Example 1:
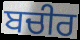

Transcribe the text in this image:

ਬਚੀਰ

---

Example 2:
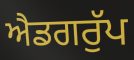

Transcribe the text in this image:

ਐਡਗਰੁੱਪ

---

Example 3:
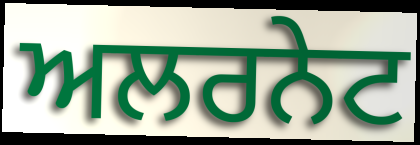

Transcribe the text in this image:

ਅਲਰਨੇਟ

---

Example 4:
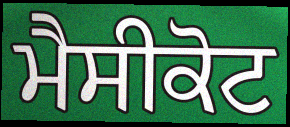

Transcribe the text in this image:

ਮੈਸੀਕੋਟ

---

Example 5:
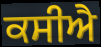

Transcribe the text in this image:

ਕਸੀਐ